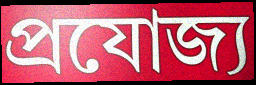
প্রযোজ্য